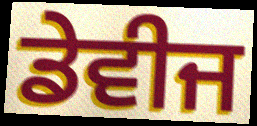
ਡੇਵੀਜ